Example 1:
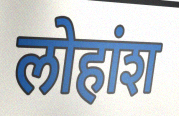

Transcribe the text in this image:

लोहांश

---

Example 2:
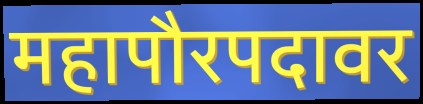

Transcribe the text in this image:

महापौरपदावर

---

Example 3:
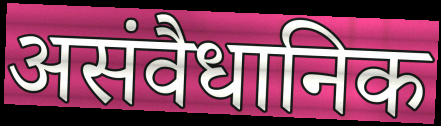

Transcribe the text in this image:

असंवैधानिक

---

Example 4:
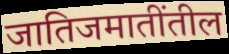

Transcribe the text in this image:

जातिजमातींतील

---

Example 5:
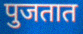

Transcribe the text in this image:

पुजतात